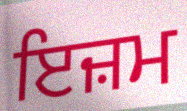
ਇਜ਼ਮ